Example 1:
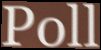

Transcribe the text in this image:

Poll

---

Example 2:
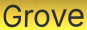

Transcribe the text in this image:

Grove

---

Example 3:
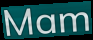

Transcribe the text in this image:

Mam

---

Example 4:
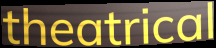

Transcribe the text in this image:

theatrical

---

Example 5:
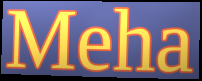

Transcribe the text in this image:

Meha